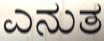
ಎನುತ